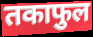
तकाफुल